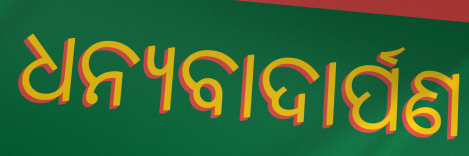
ଧନ୍ୟବାଦାର୍ପଣ